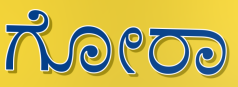
ಗೋರಾ